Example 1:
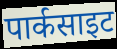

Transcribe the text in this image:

पार्कसाइट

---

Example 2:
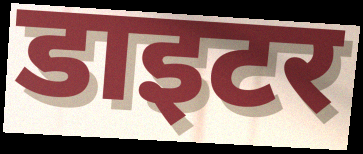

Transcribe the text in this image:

डाइटर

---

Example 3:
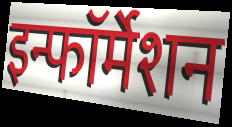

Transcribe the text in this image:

इन्फॉर्मेशन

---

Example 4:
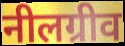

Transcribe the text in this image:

नीलग्रीव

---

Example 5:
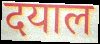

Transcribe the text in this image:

दयाल